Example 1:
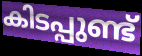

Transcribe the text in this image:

കിടപ്പുണ്ട്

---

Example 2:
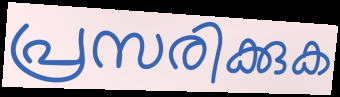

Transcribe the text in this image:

പ്രസരിക്കുക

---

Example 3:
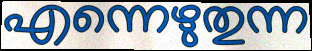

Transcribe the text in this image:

എന്നെഴുതുന്ന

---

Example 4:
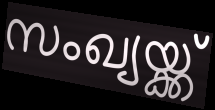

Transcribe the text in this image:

സംഖ്യയ്ക്ക്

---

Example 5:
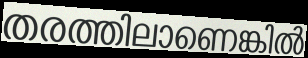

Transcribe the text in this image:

തരത്തിലാണെങ്കിൽ